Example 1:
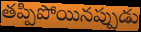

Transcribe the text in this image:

తప్పిపోయినప్పుడు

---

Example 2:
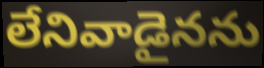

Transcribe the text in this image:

లేనివాడైనను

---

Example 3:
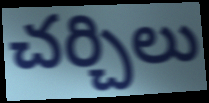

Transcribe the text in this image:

చర్చిలు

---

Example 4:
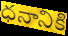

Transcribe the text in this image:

ధనానికి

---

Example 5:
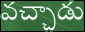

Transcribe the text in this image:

వచ్చాడు